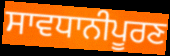
ਸਾਵਧਾਨੀਪੂਰਣ